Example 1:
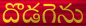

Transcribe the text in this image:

దొడగెను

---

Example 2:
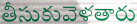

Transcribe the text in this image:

తీసుకువెళతారు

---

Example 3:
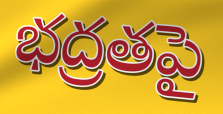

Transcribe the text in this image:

భద్రతపై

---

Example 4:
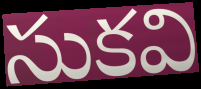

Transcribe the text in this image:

సుకవి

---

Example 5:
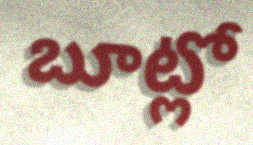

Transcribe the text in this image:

బూట్లో